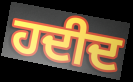
ਹਦੀਦ